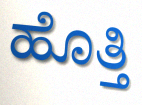
ಹೊತ್ತಿ